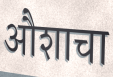
औशाचा